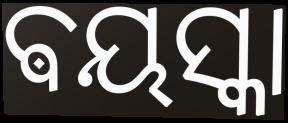
ଵୟସ୍କା